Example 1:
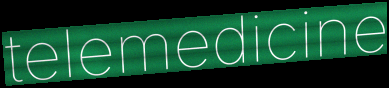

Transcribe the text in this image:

telemedicine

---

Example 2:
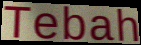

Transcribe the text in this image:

Tebah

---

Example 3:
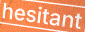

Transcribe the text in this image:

hesitant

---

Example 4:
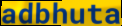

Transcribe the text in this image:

adbhuta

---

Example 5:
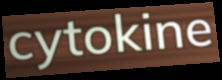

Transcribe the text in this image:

cytokine